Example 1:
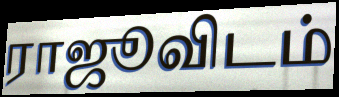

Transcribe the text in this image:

ராஜூவிடம்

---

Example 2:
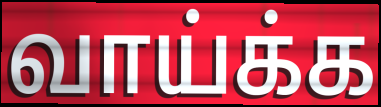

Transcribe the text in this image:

வாய்க்க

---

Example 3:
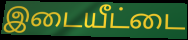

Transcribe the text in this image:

இடையீட்டை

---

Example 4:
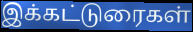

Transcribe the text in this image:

இக்கட்டுரைகள்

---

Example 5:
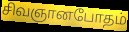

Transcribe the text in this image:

சிவஞானபோதம்